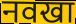
नवखा